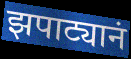
झपाट्यानं